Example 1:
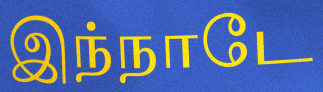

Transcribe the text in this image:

இந்நாடே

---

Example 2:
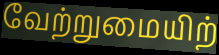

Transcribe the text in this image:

வேற்றுமையிற்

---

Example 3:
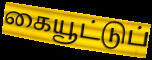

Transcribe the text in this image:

கையூட்டுப்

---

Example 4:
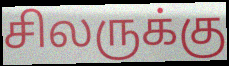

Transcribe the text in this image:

சிலருக்கு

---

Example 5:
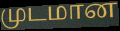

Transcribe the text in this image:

முடமான